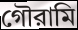
গৌরামি